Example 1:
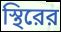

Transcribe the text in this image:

স্থিরের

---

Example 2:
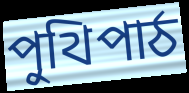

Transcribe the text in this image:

পুথিপাঠ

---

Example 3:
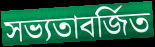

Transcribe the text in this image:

সভ্যতাবর্জিত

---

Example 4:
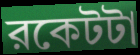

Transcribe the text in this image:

রকেটটা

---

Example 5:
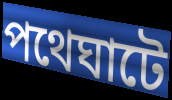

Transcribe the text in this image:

পথেঘাটে